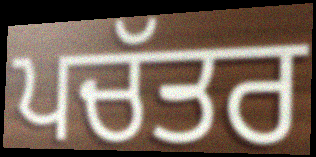
ਪਚੱਤਰ